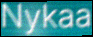
Nykaa